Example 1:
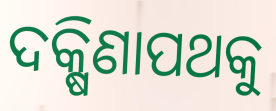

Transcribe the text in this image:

ଦକ୍ଷିଣାପଥକୁ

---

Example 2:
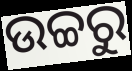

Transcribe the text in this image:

ଉଚ୍ଚରୁ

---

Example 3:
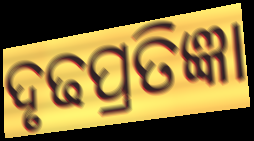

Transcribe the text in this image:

ଦୃଢପ୍ରତିଜ୍ଞା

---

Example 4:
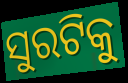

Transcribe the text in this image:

ସୁରଟିକୁ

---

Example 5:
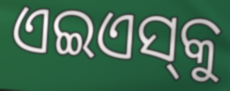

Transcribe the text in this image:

ଏଇଏସ୍‌କୁ